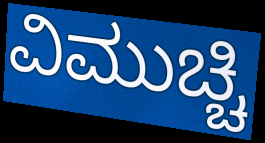
ವಿಮುಚ್ಚಿ